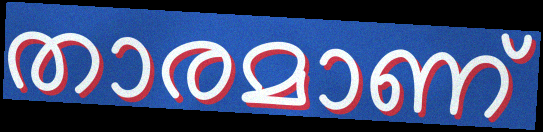
താരമാണ്